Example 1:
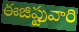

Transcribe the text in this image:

ఈజిప్టువారి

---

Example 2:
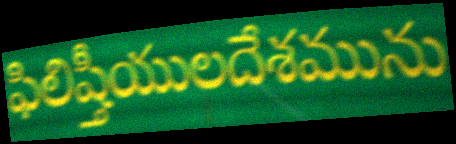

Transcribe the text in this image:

ఫిలిష్తీయులదేశమును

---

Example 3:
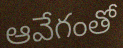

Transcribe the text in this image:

ఆవేగంతో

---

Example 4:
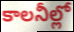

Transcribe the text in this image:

కాలనీల్లో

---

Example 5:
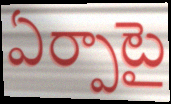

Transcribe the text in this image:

ఏర్పాటై